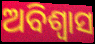
ଅବିଶ୍ବାସ